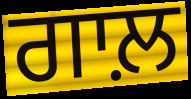
ਗਾਲ਼